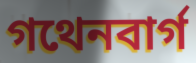
গথেনবার্গ